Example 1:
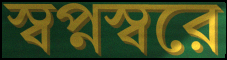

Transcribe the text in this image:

স্বপ্নস্বরে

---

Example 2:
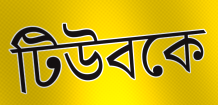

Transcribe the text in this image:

টিউবকে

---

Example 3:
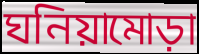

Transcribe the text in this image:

ঘনিয়ামোড়া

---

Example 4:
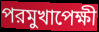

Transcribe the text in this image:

পরমুখাপেক্ষী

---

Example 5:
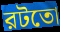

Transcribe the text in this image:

রটতো